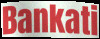
Bankati